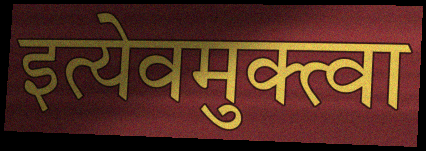
इत्येवमुक्त्वा